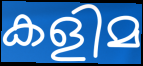
കളിമ